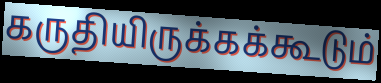
கருதியிருக்கக்கூடும்